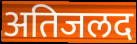
अतिजलद